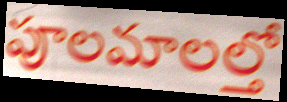
పూలమాలల్తో